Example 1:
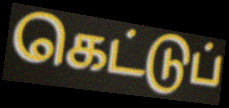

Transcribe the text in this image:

கெட்டுப்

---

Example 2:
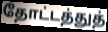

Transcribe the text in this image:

தோட்டத்துத்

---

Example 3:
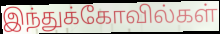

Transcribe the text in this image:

இந்துக்கோவில்கள்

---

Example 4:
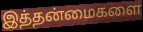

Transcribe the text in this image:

இத்தன்மைகளை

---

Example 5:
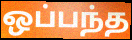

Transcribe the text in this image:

ஒப்பந்த